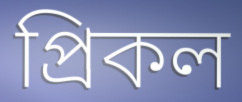
প্রিকল